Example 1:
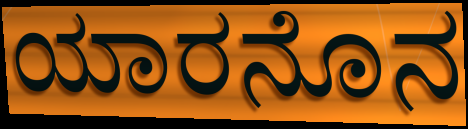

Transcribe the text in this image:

ಯಾರನೊನ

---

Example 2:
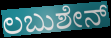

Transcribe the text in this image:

ಲಬುಶೇನ್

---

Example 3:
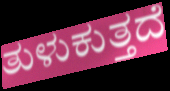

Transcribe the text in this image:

ತುಳುಕುತ್ತದೆ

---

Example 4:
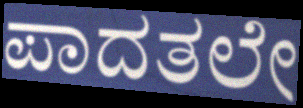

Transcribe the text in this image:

ಪಾದತಲೇ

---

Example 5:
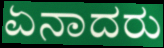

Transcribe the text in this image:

ಏನಾದರು